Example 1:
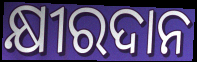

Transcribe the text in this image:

କ୍ଷୀରଦାନ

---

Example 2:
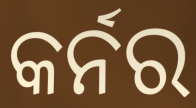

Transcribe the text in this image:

କର୍ନର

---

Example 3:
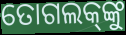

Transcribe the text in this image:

ତୋଗଲକ୍‌ଙ୍କୁ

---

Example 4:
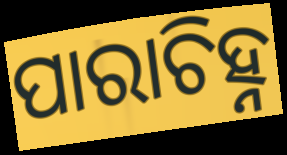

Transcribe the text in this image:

ପାରାଚିହ୍ନ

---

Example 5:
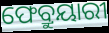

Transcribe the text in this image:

ଫେବ୍ରୁୟାରୀ